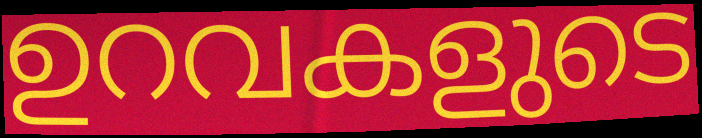
ഉറവകളുടെ